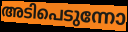
അടിപെടുന്നോ